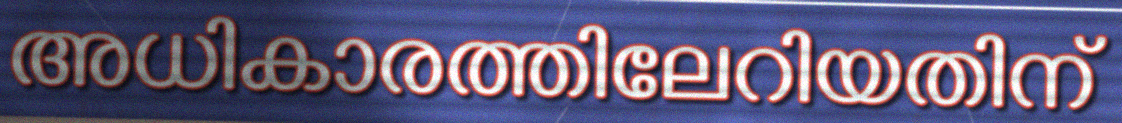
അധികാരത്തിലേറിയതിന്